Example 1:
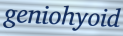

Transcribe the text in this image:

geniohyoid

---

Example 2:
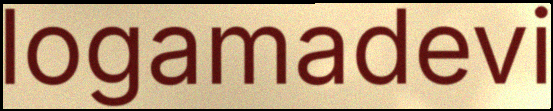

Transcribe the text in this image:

logamadevi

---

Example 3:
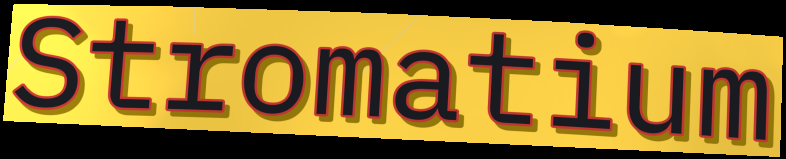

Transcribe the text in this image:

Stromatium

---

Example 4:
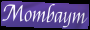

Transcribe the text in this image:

Mombaym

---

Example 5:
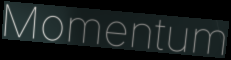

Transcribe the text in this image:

Momentum